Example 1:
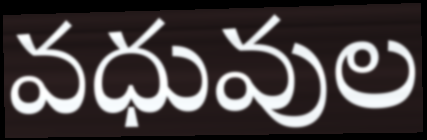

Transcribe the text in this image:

వధువుల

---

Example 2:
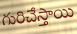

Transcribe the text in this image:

గురిచేస్తాయి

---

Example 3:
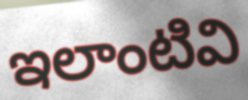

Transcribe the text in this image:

ఇలాంటివి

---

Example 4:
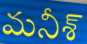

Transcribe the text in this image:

మనీశ్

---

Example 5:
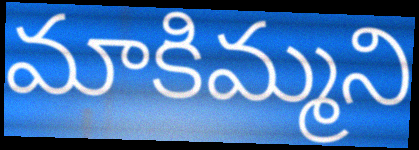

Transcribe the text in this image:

మాకిమ్మని